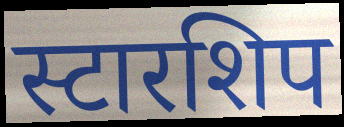
स्टारशिप